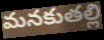
మనకుతల్లి